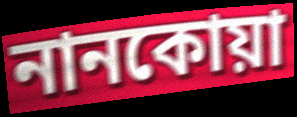
নানকোয়া